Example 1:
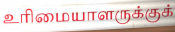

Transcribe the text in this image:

உரிமையாளருக்குக்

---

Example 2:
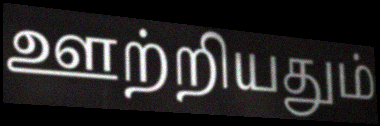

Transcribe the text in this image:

ஊற்றியதும்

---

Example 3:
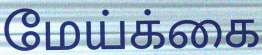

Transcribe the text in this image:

மேய்க்கை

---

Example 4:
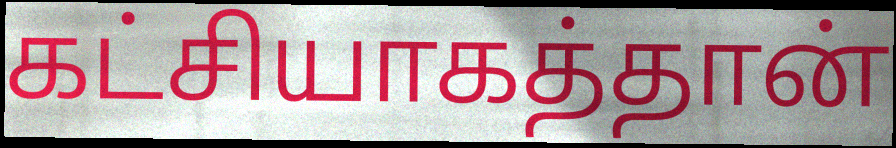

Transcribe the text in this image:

கட்சியாகத்தான்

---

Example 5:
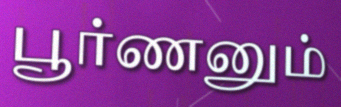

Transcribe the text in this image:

பூர்ணனும்